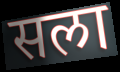
सला